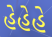
હેહેહે